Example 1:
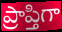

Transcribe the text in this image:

ప్రాప్తిగా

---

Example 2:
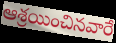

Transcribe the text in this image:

ఆశ్రయించినవారే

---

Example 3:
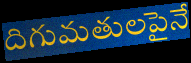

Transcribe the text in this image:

దిగుమతులపైనే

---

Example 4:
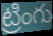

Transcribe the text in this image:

ట్రింగు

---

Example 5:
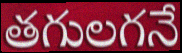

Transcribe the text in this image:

తగులగనే